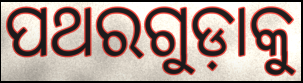
ପଥରଗୁଡ଼ାକୁ